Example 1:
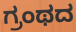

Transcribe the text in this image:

ಗ್ರಂಥದ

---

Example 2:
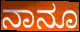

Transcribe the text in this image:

ನಾನೂ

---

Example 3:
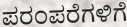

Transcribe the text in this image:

ಪರಂಪರೆಗಳಿಗೆ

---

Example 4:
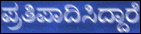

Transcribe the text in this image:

ಪ್ರತಿಪಾದಿಸಿದ್ದಾರೆ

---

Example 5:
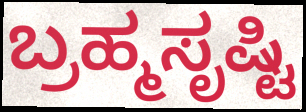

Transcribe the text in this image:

ಬ್ರಹ್ಮಸೃಷ್ಟಿ